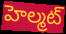
హెల్మట్